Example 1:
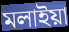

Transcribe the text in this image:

মলাইয়া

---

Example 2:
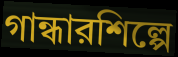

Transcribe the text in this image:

গান্ধারশিল্পে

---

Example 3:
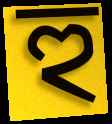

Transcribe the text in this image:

হু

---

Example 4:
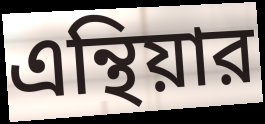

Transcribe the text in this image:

এন্থিয়ার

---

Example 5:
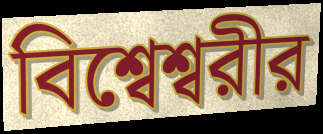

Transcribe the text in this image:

বিশ্বেশ্বরীর